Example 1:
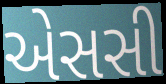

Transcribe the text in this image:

એસસી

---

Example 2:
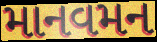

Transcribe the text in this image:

માનવમન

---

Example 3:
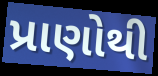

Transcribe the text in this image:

પ્રાણોથી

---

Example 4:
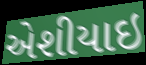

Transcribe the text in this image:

એશીયાઇ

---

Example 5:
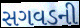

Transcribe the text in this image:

સગવડની